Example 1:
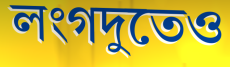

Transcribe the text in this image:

লংগদুতেও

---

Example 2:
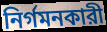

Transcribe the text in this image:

নির্গমনকারী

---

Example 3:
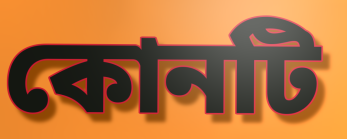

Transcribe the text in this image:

কোনটি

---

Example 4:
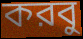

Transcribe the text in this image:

করবু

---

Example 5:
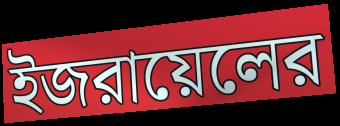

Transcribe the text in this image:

ইজরায়েলের